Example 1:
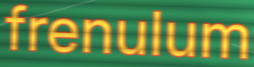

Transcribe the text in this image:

frenulum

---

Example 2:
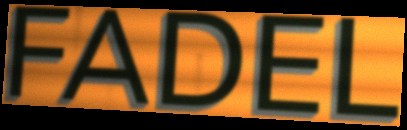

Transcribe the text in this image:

FADEL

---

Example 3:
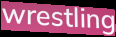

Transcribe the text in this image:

wrestling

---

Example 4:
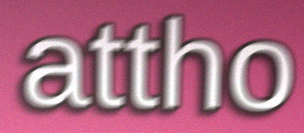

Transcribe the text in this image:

attho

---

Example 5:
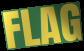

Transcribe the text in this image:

FLAG